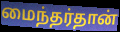
மைந்தர்தான்